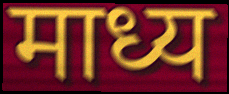
माध्य